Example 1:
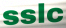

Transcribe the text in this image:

sslc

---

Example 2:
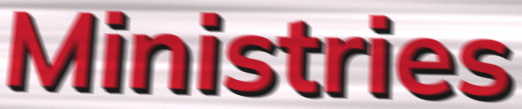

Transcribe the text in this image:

Ministries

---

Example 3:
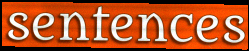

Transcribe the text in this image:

sentences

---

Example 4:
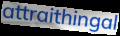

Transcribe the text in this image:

attraithingal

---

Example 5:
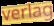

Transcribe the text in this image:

verlag